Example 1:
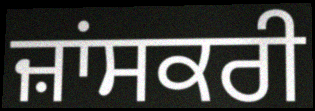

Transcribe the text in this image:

ਜ਼ਾਂਸਕਰੀ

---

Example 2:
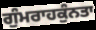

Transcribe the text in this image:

ਗੁੰਮਰਾਹਕੁੰਨਤਾ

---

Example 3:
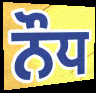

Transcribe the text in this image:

ਨੌਧ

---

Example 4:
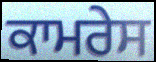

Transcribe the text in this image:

ਕਾਮਰੇਸ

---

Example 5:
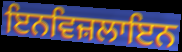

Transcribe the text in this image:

ਇਨਵਿਜ਼ਲਾਇਨ